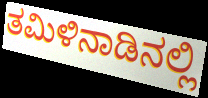
ತಮಿಳಿನಾಡಿನಲ್ಲಿ